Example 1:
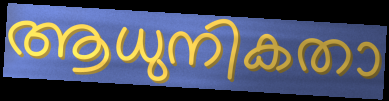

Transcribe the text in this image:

ആധുനികതാ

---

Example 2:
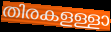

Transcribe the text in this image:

തിരകളള്ളാ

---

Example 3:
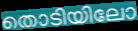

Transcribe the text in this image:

തൊടിയിലോ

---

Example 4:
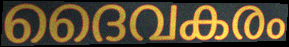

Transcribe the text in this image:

ദൈവകരം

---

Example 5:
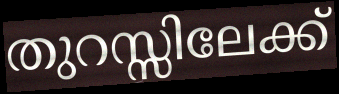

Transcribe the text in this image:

തുറസ്സിലേക്ക്